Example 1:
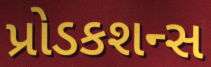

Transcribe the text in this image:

પ્રોડકશન્સ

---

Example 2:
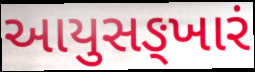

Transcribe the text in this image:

આયુસઙ્ખારં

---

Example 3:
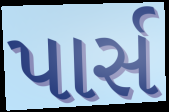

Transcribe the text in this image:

પાર્સ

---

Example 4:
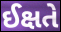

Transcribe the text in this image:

ઈક્ષતે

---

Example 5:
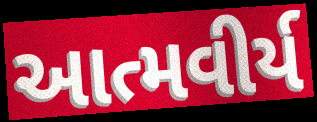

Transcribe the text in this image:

આત્મવીર્ય